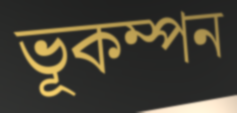
ভূকম্পন